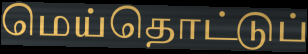
மெய்தொட்டுப்